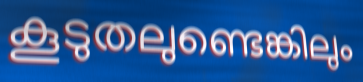
കൂടുതലുണ്ടെങ്കിലും